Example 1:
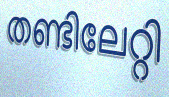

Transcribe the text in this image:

തണ്ടിലേറ്റി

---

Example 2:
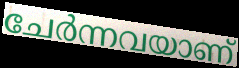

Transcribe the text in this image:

ചേർന്നവയാണ്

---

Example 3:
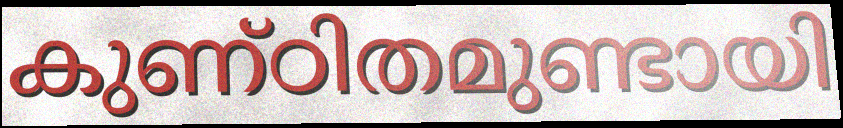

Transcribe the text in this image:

കുണ്ഠിതമുണ്ടായി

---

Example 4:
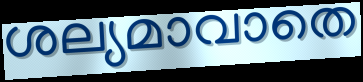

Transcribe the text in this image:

ശല്യമാവാതെ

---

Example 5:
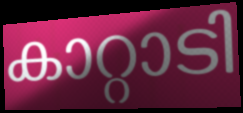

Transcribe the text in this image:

കാറ്റാടി